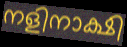
നളിനാക്ഷി